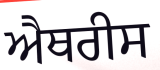
ਐਥਰੀਸ